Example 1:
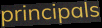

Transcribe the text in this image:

principals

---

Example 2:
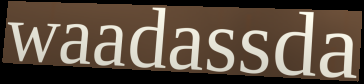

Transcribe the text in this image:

waadassda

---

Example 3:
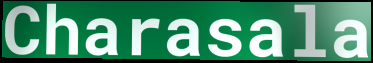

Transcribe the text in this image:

Charasala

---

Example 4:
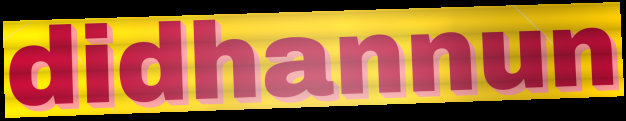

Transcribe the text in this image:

didhannun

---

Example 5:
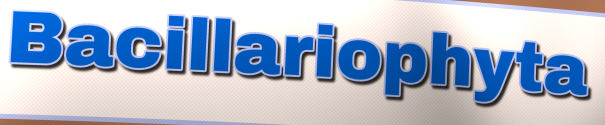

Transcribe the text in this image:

Bacillariophyta